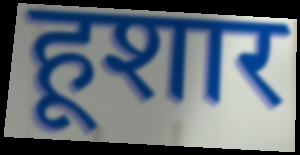
हूशार